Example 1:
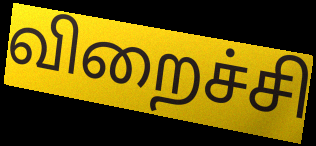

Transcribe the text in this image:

விறைச்சி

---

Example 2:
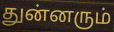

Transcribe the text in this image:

துன்னரும்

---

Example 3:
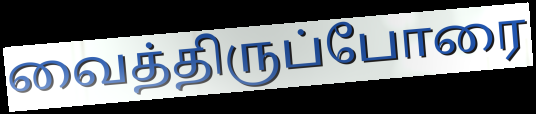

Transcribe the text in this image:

வைத்திருப்போரை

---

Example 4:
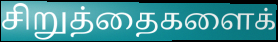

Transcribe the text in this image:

சிறுத்தைகளைக்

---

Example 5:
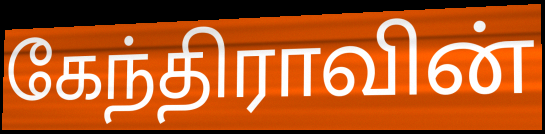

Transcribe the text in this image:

கேந்திராவின்